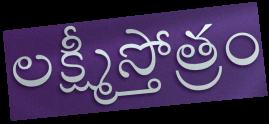
లక్ష్మీస్తోత్రం